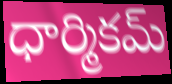
ధార్మికమ్